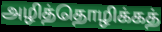
அழித்தொழிக்கத்